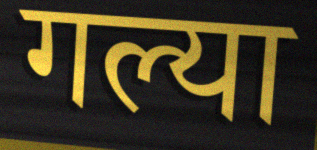
गल्या